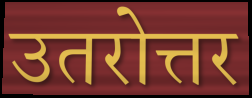
उतरोत्तर